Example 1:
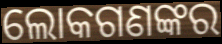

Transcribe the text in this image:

ଲୋକଗଣଙ୍କର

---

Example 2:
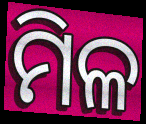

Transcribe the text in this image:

ମିଳ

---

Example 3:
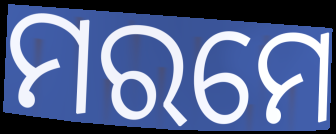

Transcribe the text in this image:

ମରମେ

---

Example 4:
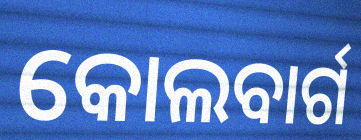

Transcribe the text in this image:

କୋଲବାର୍ଗ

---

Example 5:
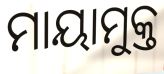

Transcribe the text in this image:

ମାୟାମୁକ୍ତ